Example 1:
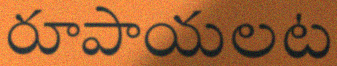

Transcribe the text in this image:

రూపాయలట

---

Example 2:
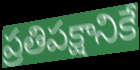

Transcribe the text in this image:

ప్రతిపక్షానికే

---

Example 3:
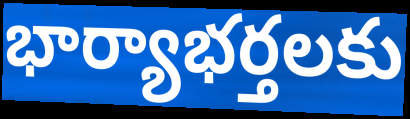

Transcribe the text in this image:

భార్యాభర్తలకు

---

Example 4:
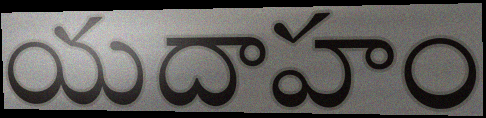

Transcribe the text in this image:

యదాహం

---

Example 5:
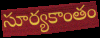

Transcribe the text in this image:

సూర్యకాంతం